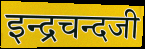
इन्द्रचन्दजी